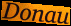
Donau